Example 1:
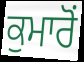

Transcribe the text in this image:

ਕੁਮਾਰੋਂ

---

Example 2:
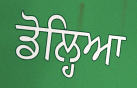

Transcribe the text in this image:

ਡੋਲ੍ਹਿਆ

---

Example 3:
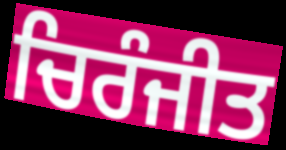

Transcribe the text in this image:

ਚਿਰੰਜੀਤ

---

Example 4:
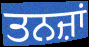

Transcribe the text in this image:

ਤਨਜ਼ਾਂ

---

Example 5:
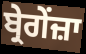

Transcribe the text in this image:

ਬ੍ਰੇਗੇਂਜ਼ਾ